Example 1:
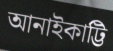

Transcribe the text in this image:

আনাইকাট্টি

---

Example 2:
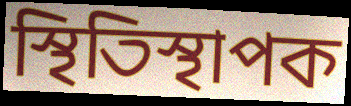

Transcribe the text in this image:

স্থিতিস্থাপক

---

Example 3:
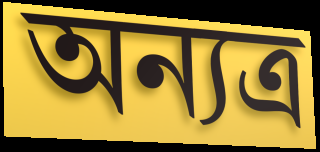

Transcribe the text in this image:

অন্যত্ৰ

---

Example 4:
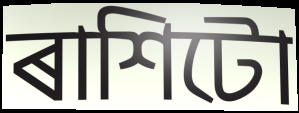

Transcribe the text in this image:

ৰাশিটো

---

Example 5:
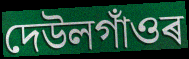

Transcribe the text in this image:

দেউলগাঁওৰ